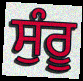
ਸੁੰਰੂ